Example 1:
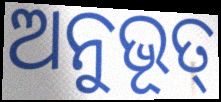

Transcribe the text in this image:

ଅନୁଭୂତ୍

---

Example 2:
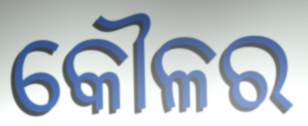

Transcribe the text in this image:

କୌଳର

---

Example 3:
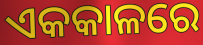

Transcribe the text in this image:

ଏକକାଳରେ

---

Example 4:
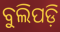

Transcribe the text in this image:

ବୁଲିପଡ଼ି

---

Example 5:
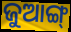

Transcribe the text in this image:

ଜୁଆଙ୍ଗ୍